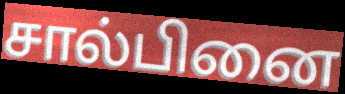
சால்பினை